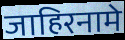
जाहिरनामे